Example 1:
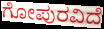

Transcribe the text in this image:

ಗೋಪುರವಿದೆ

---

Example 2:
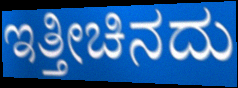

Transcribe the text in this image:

ಇತ್ತೀಚಿನದು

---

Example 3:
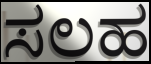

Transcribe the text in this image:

ಸಲಹ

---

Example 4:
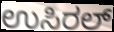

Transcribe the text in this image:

ಉಸಿರಲ್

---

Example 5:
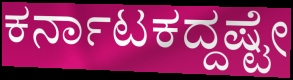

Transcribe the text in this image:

ಕರ್ನಾಟಕದ್ದಷ್ಟೇ